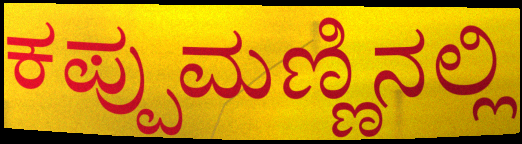
ಕಪ್ಪುಮಣ್ಣಿನಲ್ಲಿ